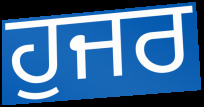
ਹੁਜਰ